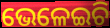
ଭେଳେଇଚି